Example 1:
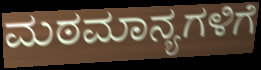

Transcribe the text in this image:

ಮಠಮಾನ್ಯಗಳಿಗೆ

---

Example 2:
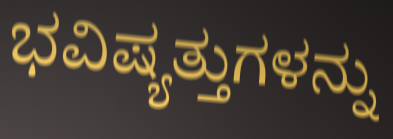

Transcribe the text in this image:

ಭವಿಷ್ಯತ್ತುಗಳನ್ನು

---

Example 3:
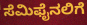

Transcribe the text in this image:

ಸೆಮಿಫೈನಲಿಗೆ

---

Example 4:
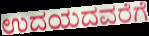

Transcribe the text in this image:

ಉದಯದವರೆಗೆ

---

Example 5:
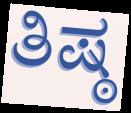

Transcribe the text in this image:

ತಿಷ್ಠ